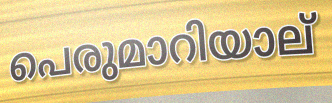
പെരുമാറിയാല്